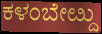
ಕಳಂಬೇೞ್ದು